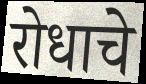
रोधाचे